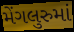
મેંગલુરુમાં